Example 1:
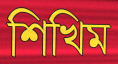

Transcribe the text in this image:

শিখিম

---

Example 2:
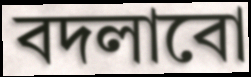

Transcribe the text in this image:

বদলাবো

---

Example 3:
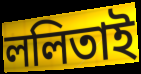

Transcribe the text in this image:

ললিতাই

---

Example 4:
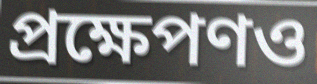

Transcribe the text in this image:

প্রক্ষেপণও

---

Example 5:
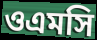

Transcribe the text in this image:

ওএমসি